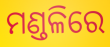
ମଣ୍ଡଳିରେ